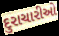
દુરાચારીઓ